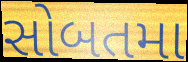
સોબતમા